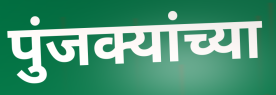
पुंजक्यांच्या